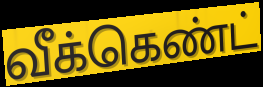
வீக்கெண்ட்